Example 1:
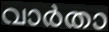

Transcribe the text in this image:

വാർതാ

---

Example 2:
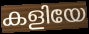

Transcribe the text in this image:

കളിയേ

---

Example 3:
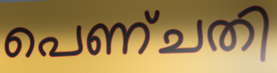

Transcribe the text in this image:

പെണ്ചതി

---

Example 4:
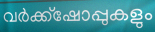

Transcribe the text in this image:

വർക്ക്ഷോപ്പുകളും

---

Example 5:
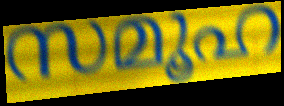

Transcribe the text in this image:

സമൂഹ